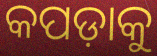
କପଡ଼ାକୁ